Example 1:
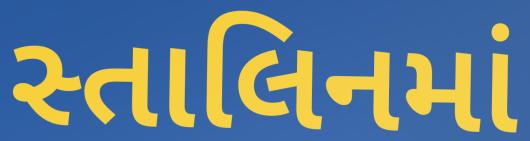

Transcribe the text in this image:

સ્તાલિનમાં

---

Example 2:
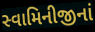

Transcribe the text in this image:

સ્વામિનીજીનાં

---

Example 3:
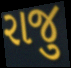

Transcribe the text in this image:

રાજુ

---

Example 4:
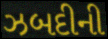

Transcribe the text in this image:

ઝબદીની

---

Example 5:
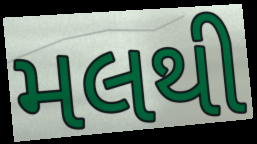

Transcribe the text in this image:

મલથી